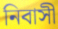
নিবাসী